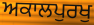
ਅਕਾਲਪੁਰਖੁ